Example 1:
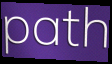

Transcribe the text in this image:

path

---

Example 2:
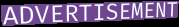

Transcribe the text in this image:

ADVERTISEMENT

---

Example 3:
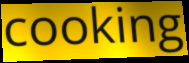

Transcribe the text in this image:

cooking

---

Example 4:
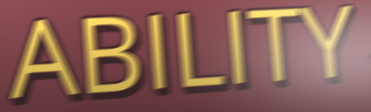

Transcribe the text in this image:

ABILITY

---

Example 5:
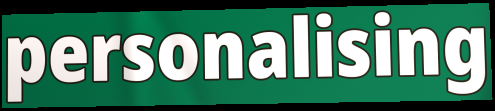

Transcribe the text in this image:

personalising